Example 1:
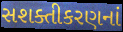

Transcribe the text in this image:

સશક્તીકરણનાં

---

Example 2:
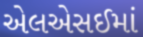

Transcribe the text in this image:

એલએસઈમાં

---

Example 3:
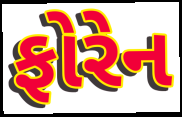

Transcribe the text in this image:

ફોરેન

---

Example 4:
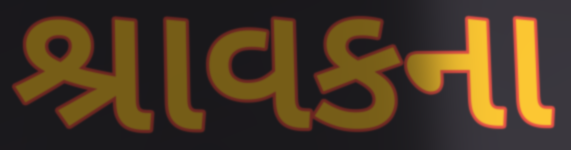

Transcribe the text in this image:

શ્રાવકના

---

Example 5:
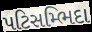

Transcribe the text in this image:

પટિસમ્ભિદા